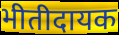
भीतीदायक